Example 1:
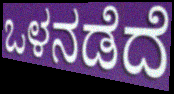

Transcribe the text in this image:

ಒಳನಡೆದೆ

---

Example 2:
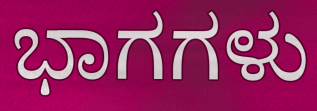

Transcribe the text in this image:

ಭಾಗಗಳು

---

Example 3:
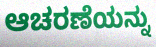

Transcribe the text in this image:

ಆಚರಣೆಯನ್ನು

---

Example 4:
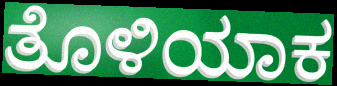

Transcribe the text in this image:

ತೊಳಿಯಾಕ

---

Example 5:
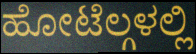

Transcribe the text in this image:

ಹೋಟೆಲ್ಗಳಲ್ಲಿ